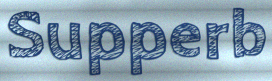
Supperb